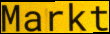
Markt